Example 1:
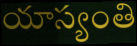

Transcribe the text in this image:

యాస్యంతి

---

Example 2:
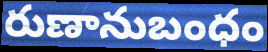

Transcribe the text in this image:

రుణానుబంధం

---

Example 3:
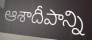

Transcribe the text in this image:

ఆశాదీపాన్ని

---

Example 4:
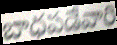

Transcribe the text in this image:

బాధపడేవారి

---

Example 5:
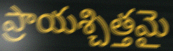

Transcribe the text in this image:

ప్రాయశ్చిత్తమై